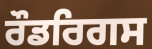
ਰੌਡਰਿਗਸ